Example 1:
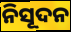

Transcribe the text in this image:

ନିସୂଦନ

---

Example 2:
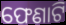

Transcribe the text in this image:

ଫେଣାଟି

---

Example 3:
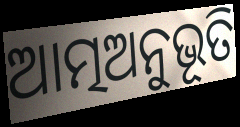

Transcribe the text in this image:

ଆତ୍ମଅନୁଭୂତି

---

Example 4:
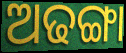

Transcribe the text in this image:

ଅଢଙ୍ଗା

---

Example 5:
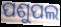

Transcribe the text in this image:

ପଶୁପଲ